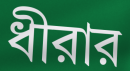
ধীরার